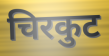
चिरकुट